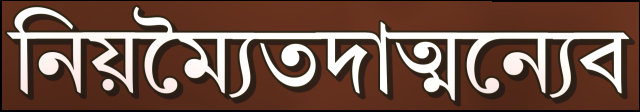
নিয়ম্যৈতদাত্মন্যেব